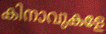
കിനാവുകളേ